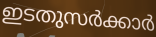
ഇടതുസർക്കാർ